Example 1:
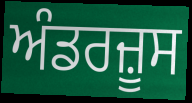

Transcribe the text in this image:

ਅੰਡਰਜ਼ੂਸ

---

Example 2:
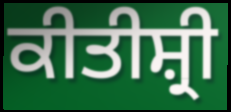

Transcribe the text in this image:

ਕੀਤੀਸ਼੍ਰੀ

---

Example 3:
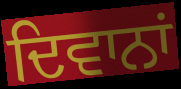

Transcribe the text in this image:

ਦਿਵਾਨਾਂ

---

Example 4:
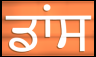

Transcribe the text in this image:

ਡਾਂਸ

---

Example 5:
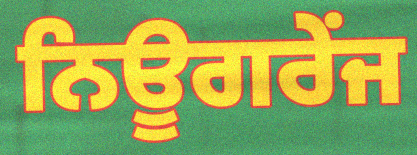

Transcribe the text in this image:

ਨਿਊਗਰੇਂਜ